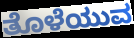
ತೊಳೆಯುವ